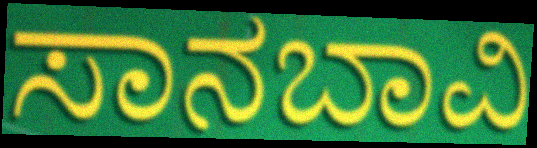
ಸಾನಬಾವಿ